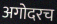
अगोदरच